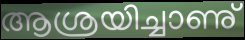
ആശ്രയിച്ചാണു്